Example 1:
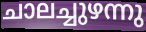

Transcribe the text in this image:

ചാലച്ചുഴന്നു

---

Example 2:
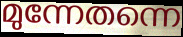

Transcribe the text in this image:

മുന്നേതന്നെ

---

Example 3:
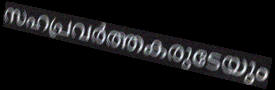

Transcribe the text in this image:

സഹപ്രവർത്തകരുടേയും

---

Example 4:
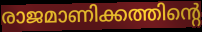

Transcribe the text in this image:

രാജമാണിക്കത്തിന്റെ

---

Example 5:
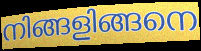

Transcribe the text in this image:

നിങ്ങളിങ്ങനെ